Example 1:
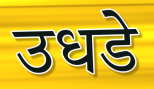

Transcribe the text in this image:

उधडे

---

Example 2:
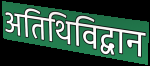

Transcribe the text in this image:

अतिथिविद्वान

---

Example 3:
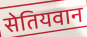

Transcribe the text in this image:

सेतियवान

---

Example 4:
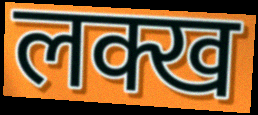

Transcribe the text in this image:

लक्ख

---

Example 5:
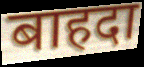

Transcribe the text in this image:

बाहदा